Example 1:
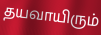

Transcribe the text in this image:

தயவாயிரும்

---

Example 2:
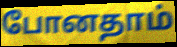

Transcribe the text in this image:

போனதாம்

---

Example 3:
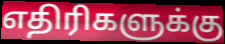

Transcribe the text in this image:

எதிரிகளுக்கு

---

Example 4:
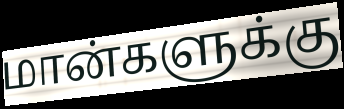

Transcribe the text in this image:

மான்களுக்கு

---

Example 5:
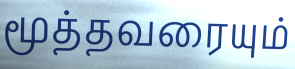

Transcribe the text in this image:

மூத்தவரையும்